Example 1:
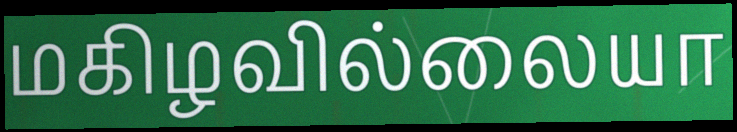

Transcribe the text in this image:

மகிழவில்லையா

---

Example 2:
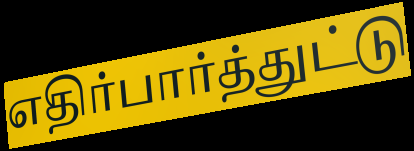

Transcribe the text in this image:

எதிர்பார்த்துட்டு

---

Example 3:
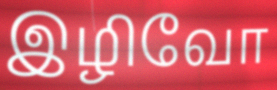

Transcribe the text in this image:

இழிவோ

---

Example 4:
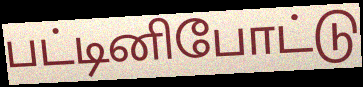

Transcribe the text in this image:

பட்டினிபோட்டு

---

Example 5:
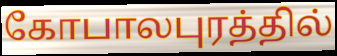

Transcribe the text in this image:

கோபாலபுரத்தில்